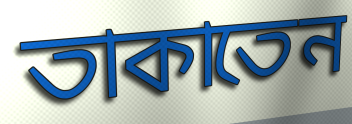
তাকাতেন